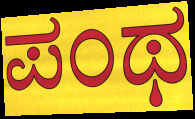
ಪಂಥ